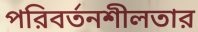
পরিবর্তনশীলতার